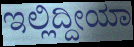
ಇಲ್ಲಿದ್ದೀಯಾ